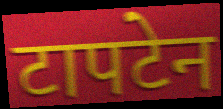
टापटेन